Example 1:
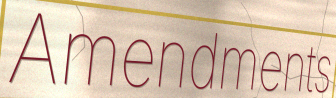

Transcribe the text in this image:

Amendments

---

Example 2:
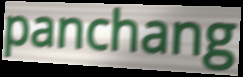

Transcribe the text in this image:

panchang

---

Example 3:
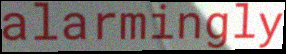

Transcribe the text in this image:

alarmingly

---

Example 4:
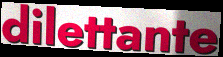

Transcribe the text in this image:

dilettante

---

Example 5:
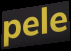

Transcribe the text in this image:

pele